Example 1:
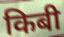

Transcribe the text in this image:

किबी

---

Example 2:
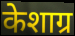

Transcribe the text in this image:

केशाग्र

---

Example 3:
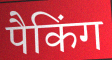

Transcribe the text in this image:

पैकिंग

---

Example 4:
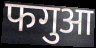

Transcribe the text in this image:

फगुआ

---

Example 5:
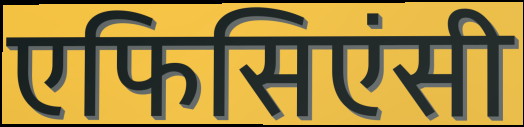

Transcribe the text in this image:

एफिसिएंसी